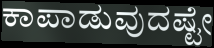
ಕಾಪಾಡುವುದಷ್ಟೇ